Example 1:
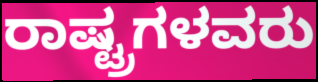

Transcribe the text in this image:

ರಾಷ್ಟ್ರಗಳವರು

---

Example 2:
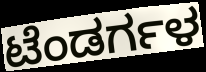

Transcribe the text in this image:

ಟೆಂಡರ್ಗಳ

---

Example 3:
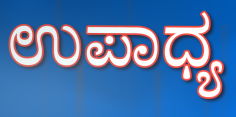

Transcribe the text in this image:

ಉಪಾಧ್ಯ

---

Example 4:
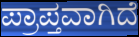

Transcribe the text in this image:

ಪ್ರಾಪ್ತವಾಗಿದೆ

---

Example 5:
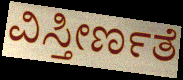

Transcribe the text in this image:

ವಿಸ್ತೀರ್ಣತೆ